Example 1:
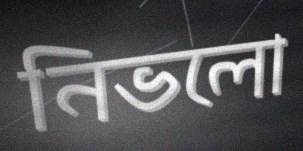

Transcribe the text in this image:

নিভলো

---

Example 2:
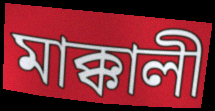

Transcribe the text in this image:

মাক্কালী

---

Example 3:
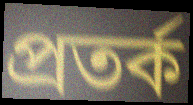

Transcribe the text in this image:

প্রতর্ক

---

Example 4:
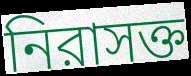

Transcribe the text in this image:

নিরাসক্ত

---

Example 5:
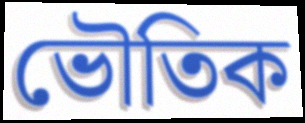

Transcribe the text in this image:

ভৌতিক